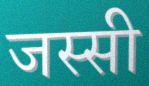
जस्सी